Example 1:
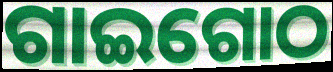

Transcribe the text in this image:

ଗାଇଗୋଠ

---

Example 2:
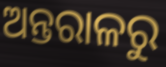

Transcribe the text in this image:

ଅନ୍ତରାଳରୁ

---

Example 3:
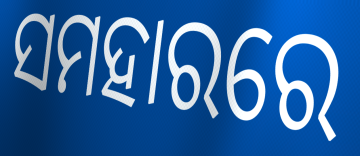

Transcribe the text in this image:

ସମହାରରେ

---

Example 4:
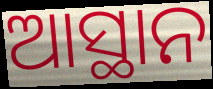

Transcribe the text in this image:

ଆସ୍ଥାନ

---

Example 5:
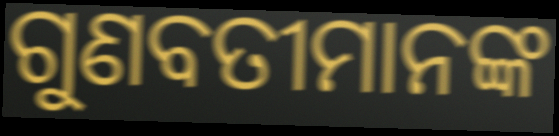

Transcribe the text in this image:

ଗୁଣବତୀମାନଙ୍କ